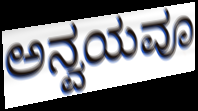
ಅನ್ವಯವೂ